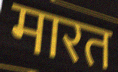
मारत